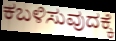
ಕಬಳಿಸುವುದಕ್ಕೆ